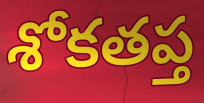
శోకతప్త